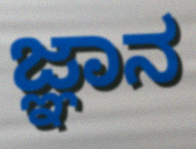
ಜ್ಞಾನ